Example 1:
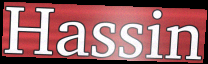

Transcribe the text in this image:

Hassin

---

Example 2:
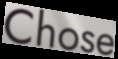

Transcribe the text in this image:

Chose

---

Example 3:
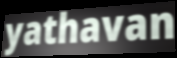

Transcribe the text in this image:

yathavan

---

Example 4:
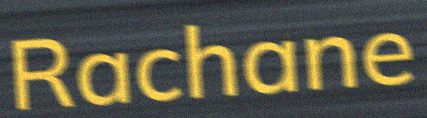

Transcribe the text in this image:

Rachane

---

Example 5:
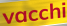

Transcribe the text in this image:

vacchi